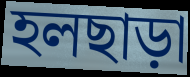
হলছাড়া